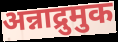
अन्नाद्रुमुक